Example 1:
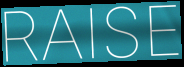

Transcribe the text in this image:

RAISE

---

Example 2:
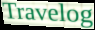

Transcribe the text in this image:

Travelog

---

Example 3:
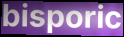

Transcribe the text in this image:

bisporic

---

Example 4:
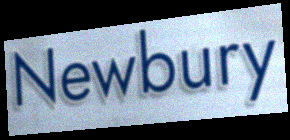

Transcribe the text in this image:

Newbury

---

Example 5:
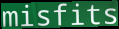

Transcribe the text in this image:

misfits